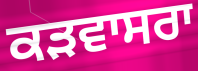
ਕੜਵਾਸਰਾ